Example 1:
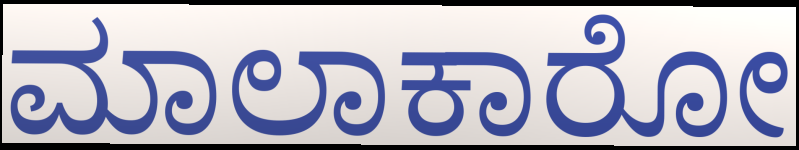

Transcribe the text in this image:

ಮಾಲಾಕಾರೋ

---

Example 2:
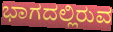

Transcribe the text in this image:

ಭಾಗದಲ್ಲಿರುವ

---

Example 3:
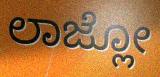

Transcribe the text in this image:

ಲಾಜ್ಲೋ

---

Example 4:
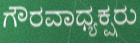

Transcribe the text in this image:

ಗೌರವಾಧ್ಯಕ್ಷರು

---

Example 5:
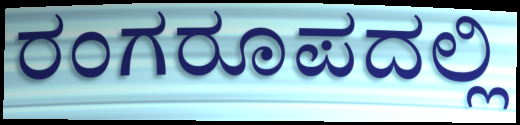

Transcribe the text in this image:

ರಂಗರೂಪದಲ್ಲಿ